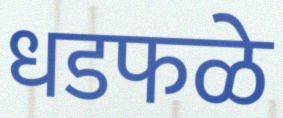
धडफळे